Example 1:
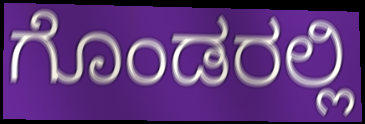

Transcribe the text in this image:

ಗೊಂಡರಲ್ಲಿ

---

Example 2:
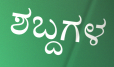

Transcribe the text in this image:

ಶಬ್ದಗಳ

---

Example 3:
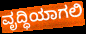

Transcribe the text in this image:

ವೃದ್ಧಿಯಾಗಲಿ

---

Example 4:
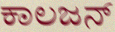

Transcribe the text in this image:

ಕಾಲಜನ್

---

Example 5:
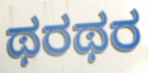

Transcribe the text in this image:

ಥರಥರ